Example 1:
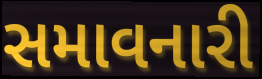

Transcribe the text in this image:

સમાવનારી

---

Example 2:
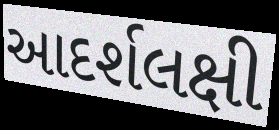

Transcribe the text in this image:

આદર્શલક્ષી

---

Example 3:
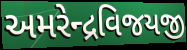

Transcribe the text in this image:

અમરેન્દ્રવિજયજી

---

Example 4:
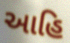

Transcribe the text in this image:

આહિ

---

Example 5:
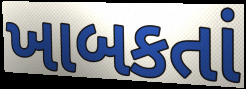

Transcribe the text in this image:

ખાબકતાં